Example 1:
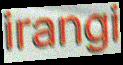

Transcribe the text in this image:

irangi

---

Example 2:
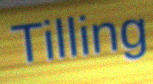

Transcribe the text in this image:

Tilling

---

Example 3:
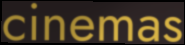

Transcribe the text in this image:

cinemas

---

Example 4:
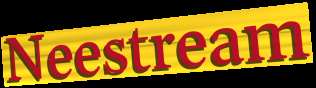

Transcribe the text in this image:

Neestream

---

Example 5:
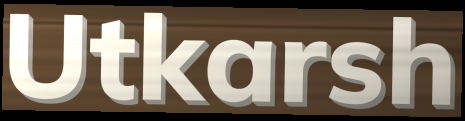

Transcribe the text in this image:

Utkarsh